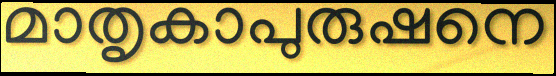
മാതൃകാപുരുഷനെ